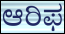
ಆರಿಫ